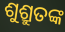
ଶୁଶ୍ରୁତଙ୍କ